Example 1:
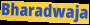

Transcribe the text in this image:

Bharadwaja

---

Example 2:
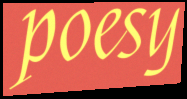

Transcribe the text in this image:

poesy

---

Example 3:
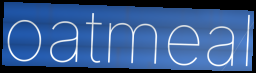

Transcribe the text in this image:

oatmeal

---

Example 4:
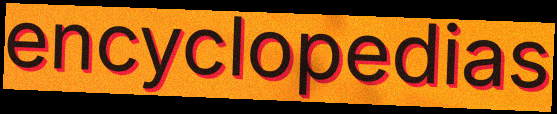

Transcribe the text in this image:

encyclopedias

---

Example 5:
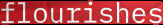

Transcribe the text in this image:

flourishes